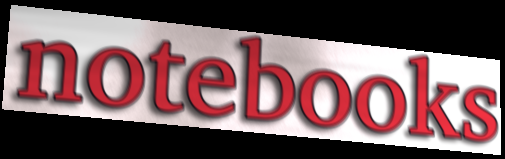
notebooks